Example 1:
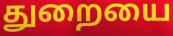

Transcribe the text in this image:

துறையை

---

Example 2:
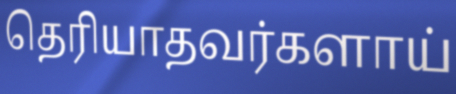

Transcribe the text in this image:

தெரியாதவர்களாய்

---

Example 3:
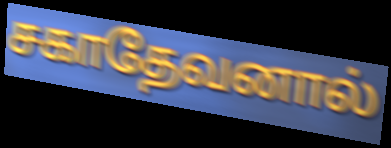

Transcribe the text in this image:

சகாதேவனால்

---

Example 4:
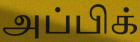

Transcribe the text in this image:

அப்பிக்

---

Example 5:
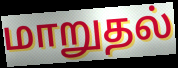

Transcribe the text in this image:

மாறுதல்